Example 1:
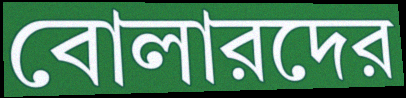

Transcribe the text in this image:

বোলারদের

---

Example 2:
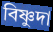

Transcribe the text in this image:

বিষ্ণুদা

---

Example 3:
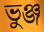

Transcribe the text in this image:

ভুঞ্জ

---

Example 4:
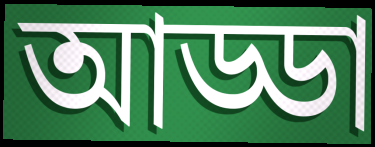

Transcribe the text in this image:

আড্ডা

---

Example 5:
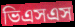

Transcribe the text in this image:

ভিএসএস